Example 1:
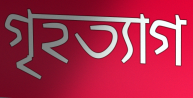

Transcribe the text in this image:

গৃহত্যাগ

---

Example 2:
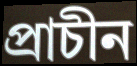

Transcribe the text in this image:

প্ৰাচীন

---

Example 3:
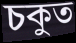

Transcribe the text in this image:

চকুত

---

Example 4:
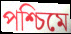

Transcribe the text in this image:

পশ্চিমে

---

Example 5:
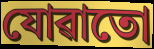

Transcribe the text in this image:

যোৱাতো